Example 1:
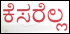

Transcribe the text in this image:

ಕೆಸರೆಲ್ಲ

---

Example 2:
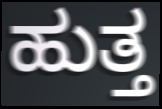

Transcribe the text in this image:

ಹುತ್ತ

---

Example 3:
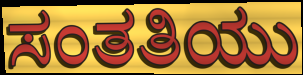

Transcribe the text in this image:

ಸಂತತಿಯು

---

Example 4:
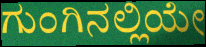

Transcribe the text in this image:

ಗುಂಗಿನಲ್ಲಿಯೇ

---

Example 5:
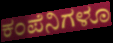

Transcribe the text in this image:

ಕಂಪೆನಿಗಳೂ